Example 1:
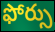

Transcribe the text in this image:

ఫోర్సు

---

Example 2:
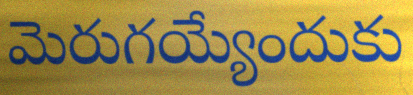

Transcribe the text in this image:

మెరుగయ్యేందుకు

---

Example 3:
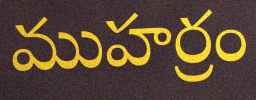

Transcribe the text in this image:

ముహర్రం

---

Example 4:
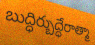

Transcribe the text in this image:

బుద్ధిర్బుద్ధేరాత్మా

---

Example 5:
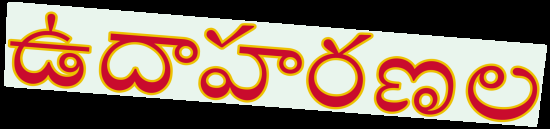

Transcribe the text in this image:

ఉదాహరణల